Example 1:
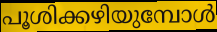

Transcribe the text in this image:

പൂശിക്കഴിയുമ്പോൾ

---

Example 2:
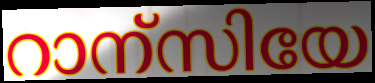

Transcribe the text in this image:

റാന്സിയേ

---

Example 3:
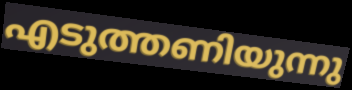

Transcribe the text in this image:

എടുത്തണിയുന്നു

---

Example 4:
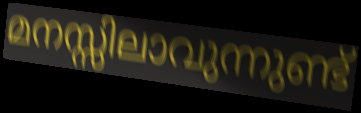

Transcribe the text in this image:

മനസ്സിലാവുന്നുണ്ട്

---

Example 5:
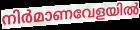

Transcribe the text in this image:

നിർമാണവേളയിൽ